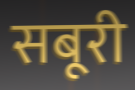
सबूरी